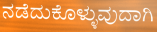
ನಡೆದುಕೊಳ್ಳುವುದಾಗಿ